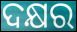
ଦକ୍ଷର